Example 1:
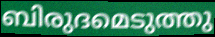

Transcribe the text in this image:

ബിരുദമെടുത്തു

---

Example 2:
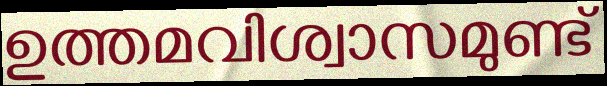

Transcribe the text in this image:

ഉത്തമവിശ്വാസമുണ്ട്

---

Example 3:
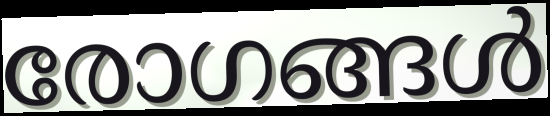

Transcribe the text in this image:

രോഗങ്ങൾ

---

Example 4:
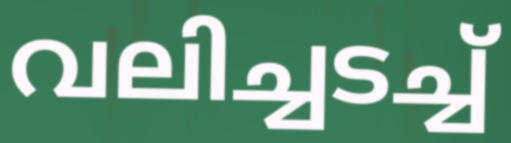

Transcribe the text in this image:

വലിച്ചടച്ച്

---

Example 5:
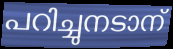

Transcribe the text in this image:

പറിച്ചുനടാന്